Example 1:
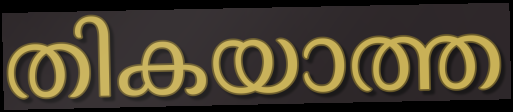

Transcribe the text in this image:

തികയാത്ത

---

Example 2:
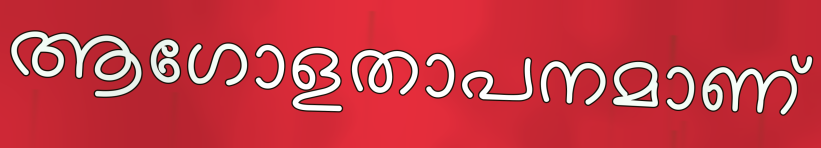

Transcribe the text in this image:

ആഗോളതാപനമാണ്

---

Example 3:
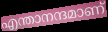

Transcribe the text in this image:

എന്താനന്ദമാണ്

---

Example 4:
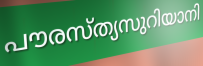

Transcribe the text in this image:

പൗരസ്ത്യസുറിയാനി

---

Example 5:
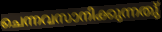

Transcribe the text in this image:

ചെന്നവസാനിക്കുന്നതു്